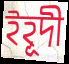
ইহূদী